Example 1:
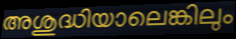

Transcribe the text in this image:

അശുദ്ധിയാലെങ്കിലും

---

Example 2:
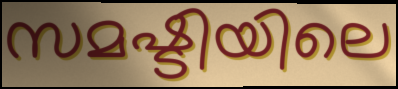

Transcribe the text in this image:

സമഷ്ടിയിലെ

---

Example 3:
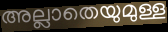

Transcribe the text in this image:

അല്ലാതെയുമുള്ള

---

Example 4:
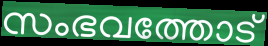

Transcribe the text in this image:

സംഭവത്തോട്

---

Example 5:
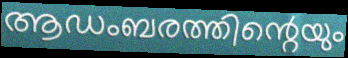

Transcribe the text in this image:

ആഡംബരത്തിന്റെയും